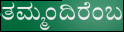
ತಮ್ಮಂದಿರೆಂಬ